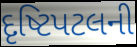
દૃષ્ટિપટલની